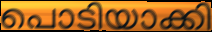
പൊടിയാക്കി